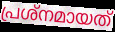
പ്രശ്നമായത്